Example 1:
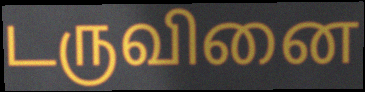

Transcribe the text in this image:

டருவினை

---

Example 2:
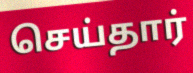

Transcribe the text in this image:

செய்தார்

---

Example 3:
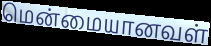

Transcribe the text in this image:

மென்மையானவள்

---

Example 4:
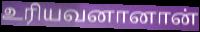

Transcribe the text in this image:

உரியவனானான்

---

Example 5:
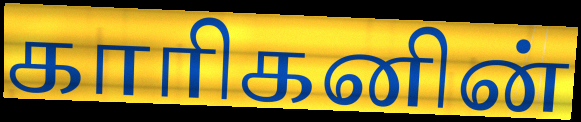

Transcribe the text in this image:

காரிகனின்